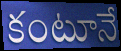
కంటూనే